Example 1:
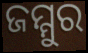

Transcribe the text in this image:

ଜମ୍ମୁର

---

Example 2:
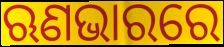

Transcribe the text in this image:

ଋଣଭାରରେ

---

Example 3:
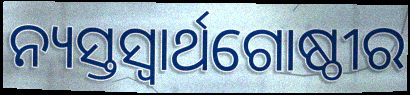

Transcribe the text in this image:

ନ୍ୟସ୍ତସ୍ୱାର୍ଥଗୋଷ୍ଠୀର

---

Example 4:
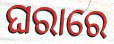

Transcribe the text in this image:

ଘରାରେ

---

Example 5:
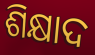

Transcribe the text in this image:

ଶିକ୍ଷାଦ